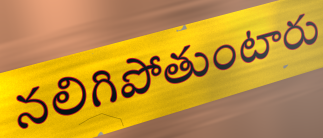
నలిగిపోతుంటారు